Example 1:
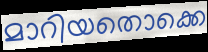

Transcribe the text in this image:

മാറിയതൊക്കെ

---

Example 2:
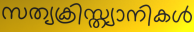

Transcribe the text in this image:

സത്യക്രിസ്ത്യാനികൾ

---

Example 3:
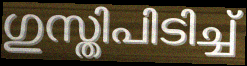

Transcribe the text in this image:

ഗുസ്തിപിടിച്ച്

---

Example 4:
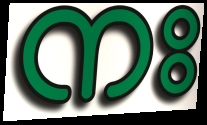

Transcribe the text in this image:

നഃ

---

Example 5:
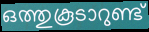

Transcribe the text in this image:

ഒത്തുകൂടാറുണ്ട്